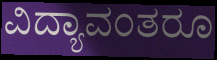
ವಿದ್ಯಾವಂತರೂ